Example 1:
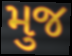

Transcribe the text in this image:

મુજ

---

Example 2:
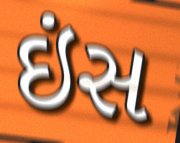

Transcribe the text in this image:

ઇંસ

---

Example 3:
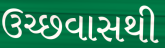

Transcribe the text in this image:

ઉચ્છવાસથી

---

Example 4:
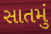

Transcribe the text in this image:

સાતમું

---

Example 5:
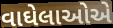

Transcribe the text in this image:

વાઘેલાઓએ